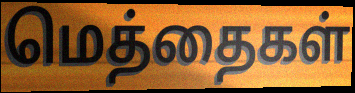
மெத்தைகள்